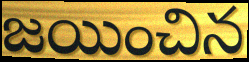
జయించిన